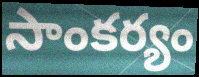
సాంకర్యం